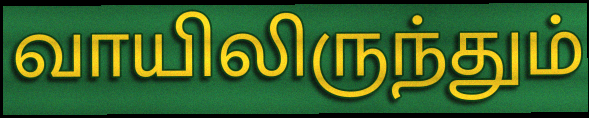
வாயிலிருந்தும்